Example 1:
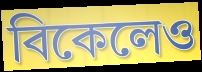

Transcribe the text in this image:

বিকেলেও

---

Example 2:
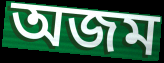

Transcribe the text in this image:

অজম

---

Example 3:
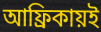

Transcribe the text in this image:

আফ্রিকায়ই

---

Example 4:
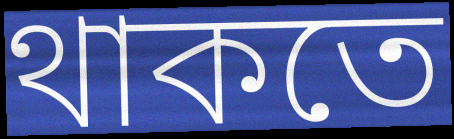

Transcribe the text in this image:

থাকতে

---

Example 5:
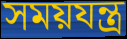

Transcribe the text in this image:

সময়যন্ত্র